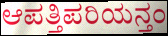
ಆಪತ್ತಿಪರಿಯನ್ತಂ